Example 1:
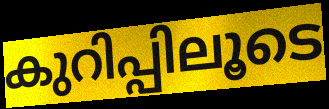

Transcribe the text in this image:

കുറിപ്പിലൂടെ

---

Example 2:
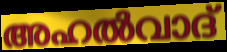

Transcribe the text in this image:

അഹൽവാദ്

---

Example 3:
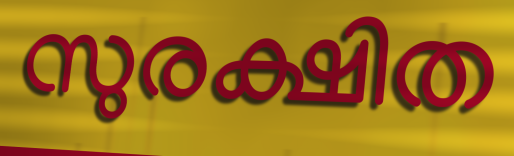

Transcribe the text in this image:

സുരക്ഷിത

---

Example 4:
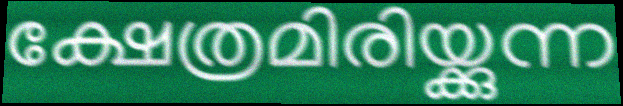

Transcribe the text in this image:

ക്ഷേത്രമിരിയ്ക്കുന്ന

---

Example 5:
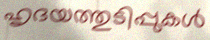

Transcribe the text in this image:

ഹൃദയത്തുടിപ്പുകൾ